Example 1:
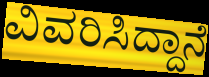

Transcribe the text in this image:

ವಿವರಿಸಿದ್ದಾನೆ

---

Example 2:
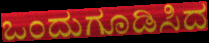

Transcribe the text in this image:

ಒಂದುಗೂಡಿಸಿದ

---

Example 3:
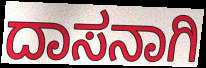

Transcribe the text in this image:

ದಾಸನಾಗಿ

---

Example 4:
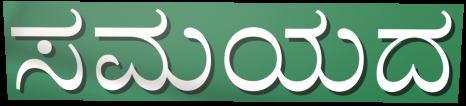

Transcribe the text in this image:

ಸಮಯದ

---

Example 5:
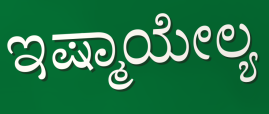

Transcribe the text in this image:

ಇಷ್ಮಾಯೇಲ್ಯ